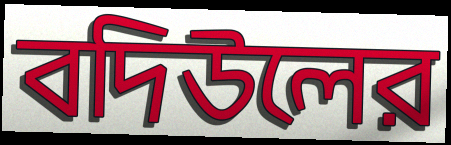
বদিউলের